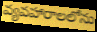
వ్యవహారాలలోను